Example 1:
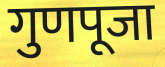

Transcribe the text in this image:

गुणपूजा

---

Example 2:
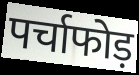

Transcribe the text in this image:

पर्चाफोड़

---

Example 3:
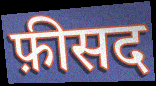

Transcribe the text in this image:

फ़ीसद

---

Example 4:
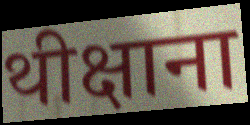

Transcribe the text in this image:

थीक्षाना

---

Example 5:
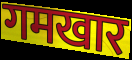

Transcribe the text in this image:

गमखार